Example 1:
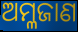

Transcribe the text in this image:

ଅମ୍ଳଜାଣ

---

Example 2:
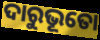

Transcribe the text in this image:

ଦାରୁଭୂତୋ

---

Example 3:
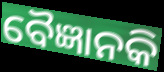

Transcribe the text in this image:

ବୈଜ୍ଞାନକି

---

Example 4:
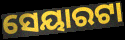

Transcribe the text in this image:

ସେୟାରଟା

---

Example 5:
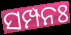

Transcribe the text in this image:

ସମ୍ପନଃ